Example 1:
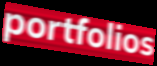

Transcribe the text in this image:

portfolios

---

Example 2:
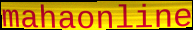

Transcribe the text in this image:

mahaonline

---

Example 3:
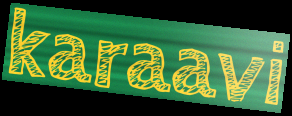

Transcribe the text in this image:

karaavi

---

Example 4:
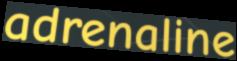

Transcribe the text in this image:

adrenaline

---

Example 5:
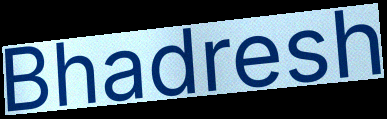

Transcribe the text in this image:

Bhadresh